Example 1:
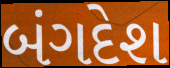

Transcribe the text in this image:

બંગદેશ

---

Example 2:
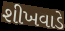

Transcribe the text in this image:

શીખવાડે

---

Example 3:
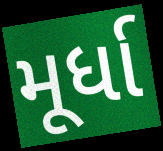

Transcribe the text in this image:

મૂર્ધા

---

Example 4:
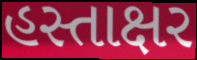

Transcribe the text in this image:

હસ્તાક્ષર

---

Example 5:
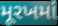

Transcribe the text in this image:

મૂરખમાં